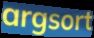
argsort